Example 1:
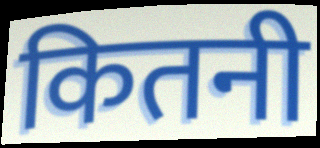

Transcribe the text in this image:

कितनी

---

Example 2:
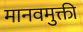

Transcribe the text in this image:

मानवमुक्ती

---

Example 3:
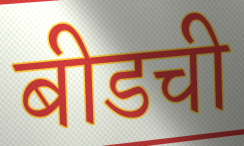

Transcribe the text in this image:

बीडची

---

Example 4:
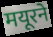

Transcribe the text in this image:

मयूरने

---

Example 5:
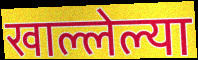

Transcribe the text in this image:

खाल्लेल्या